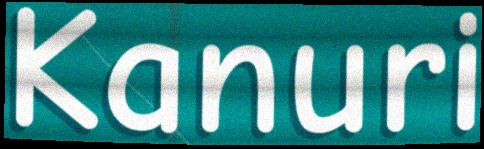
Kanuri